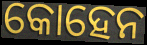
କୋହେନ